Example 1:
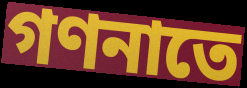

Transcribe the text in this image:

গণনাতে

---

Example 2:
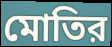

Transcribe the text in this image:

মোতির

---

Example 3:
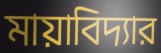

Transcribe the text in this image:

মায়াবিদ্যার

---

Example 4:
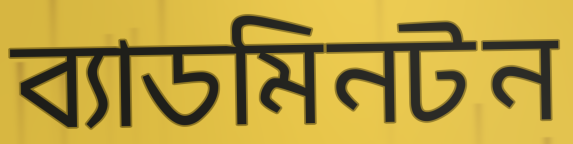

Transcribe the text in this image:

ব্যাডমিনটন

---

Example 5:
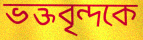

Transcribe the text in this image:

ভক্তবৃন্দকে